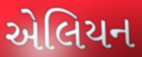
એલિયન